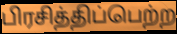
பிரசித்திப்பெற்ற